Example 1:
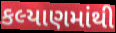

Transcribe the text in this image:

કલ્યાણમાંથી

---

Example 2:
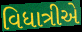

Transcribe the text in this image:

વિધાત્રીએ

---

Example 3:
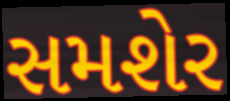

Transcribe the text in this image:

સમશેર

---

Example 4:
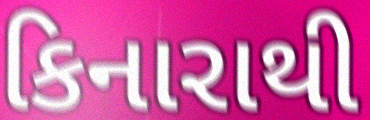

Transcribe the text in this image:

કિનારાથી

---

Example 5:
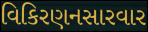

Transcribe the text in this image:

વિકિરણનસારવાર